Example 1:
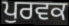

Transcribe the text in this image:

ਪੁਰਵਕ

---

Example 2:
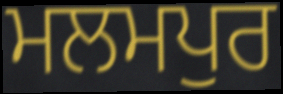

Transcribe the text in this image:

ਮਲਮਪੁਰ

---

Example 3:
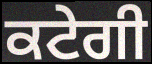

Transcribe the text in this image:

ਕਟੇਗੀ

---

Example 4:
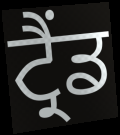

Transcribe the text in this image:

ਟ੍ਰੈਂਡ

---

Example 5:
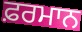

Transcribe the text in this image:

ਫ਼ਰਮਾਨ